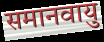
समानवायु